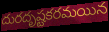
దురదృష్టకరమయిన